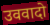
उववादो